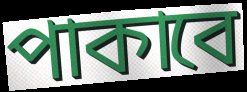
পাকাবে